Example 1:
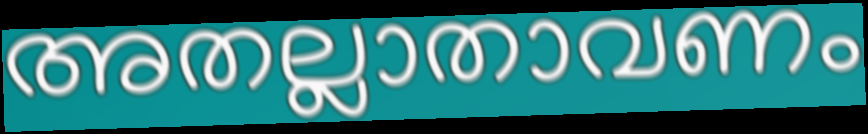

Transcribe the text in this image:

അതല്ലാതാവണം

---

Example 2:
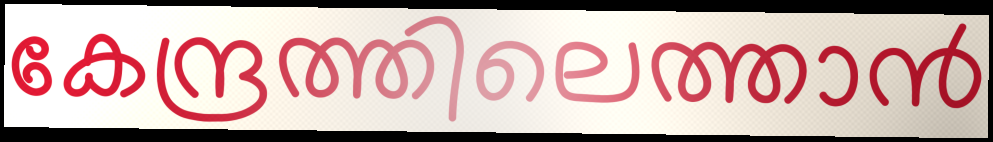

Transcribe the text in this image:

കേന്ദ്രത്തിലെത്താൻ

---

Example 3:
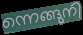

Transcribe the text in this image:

ന്നെങ്ങുനി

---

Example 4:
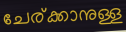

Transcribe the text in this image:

ചേര്ക്കാനുള്ള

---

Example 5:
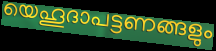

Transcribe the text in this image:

യെഹൂദാപട്ടണങ്ങളും